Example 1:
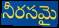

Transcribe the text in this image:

నీరసమై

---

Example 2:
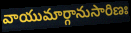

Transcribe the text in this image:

వాయుమార్గానుసారిణః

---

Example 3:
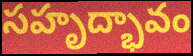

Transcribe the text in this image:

సహృద్భావం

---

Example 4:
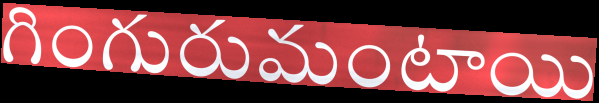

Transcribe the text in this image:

గింగురుమంటాయి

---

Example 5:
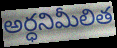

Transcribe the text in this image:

అర్ధనిమీలిత